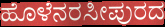
ಹೊಳೆನರಸೀಪುರದ